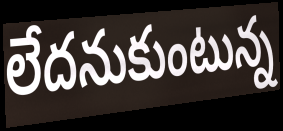
లేదనుకుంటున్న